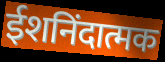
ईशनिंदात्मक